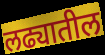
लढ्यातील